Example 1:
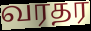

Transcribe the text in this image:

வரதர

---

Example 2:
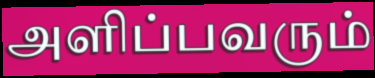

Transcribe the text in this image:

அளிப்பவரும்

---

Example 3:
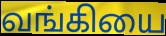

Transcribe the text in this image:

வங்கியை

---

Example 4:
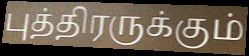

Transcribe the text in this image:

புத்திரருக்கும்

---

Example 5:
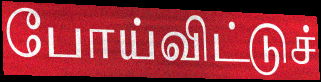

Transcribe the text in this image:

போய்விட்டுச்